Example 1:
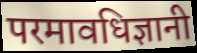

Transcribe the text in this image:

परमावधिज्ञानी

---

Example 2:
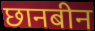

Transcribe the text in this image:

छानबीन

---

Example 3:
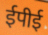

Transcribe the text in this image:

ईपीई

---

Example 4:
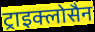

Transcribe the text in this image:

ट्राइक्लोसैन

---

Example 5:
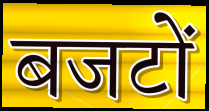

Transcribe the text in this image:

बजटों